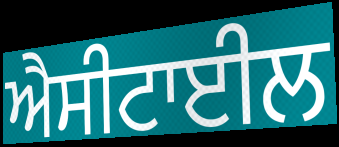
ਐਸੀਟਾਈਲ